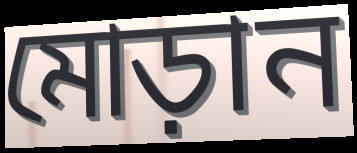
মোড়ান